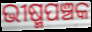
ଭୀଷ୍ମପଞ୍ଚକ